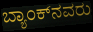
ಬ್ಯಾಂಕ್‌ನವರು